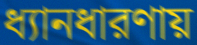
ধ্যানধারণায়